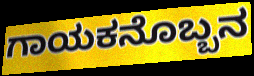
ಗಾಯಕನೊಬ್ಬನ